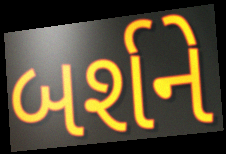
બર્શને